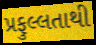
પ્રફુલ્લતાથી